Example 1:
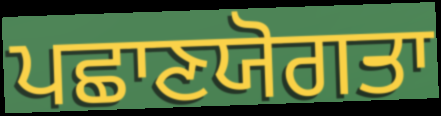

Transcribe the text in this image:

ਪਛਾਣਯੋਗਤਾ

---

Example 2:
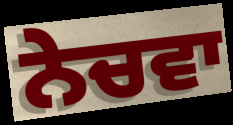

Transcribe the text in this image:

ਨੇਚਵਾ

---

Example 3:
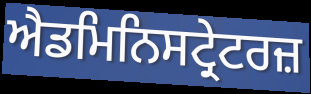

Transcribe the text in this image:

ਐਡਮਿਨਿਸਟ੍ਰੇਟਰਜ਼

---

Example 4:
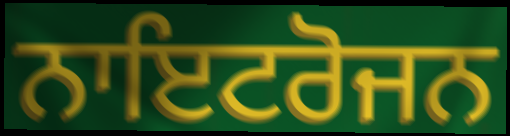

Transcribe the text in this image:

ਨਾਇਟਰੋਜਨ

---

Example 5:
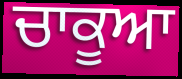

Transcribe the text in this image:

ਚਾਕੂਆ